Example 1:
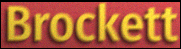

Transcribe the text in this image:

Brockett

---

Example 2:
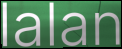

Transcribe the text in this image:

lalan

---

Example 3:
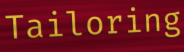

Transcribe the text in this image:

Tailoring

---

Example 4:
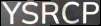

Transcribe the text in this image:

YSRCP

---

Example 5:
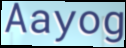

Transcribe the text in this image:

Aayog